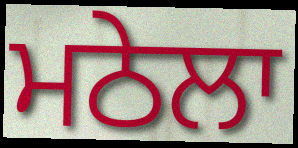
ਮਠੇਲਾ